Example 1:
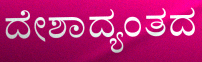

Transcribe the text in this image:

ದೇಶಾದ್ಯಂತದ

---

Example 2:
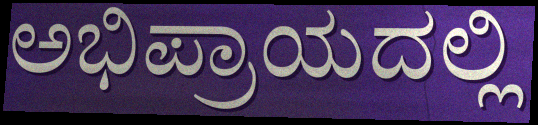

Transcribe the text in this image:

ಅಭಿಪ್ರಾಯದಲ್ಲಿ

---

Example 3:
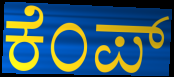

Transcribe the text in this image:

ಕೆಂಪ್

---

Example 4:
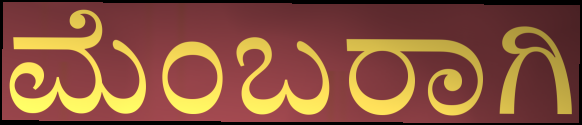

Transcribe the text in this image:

ಮೆಂಬರಾಗಿ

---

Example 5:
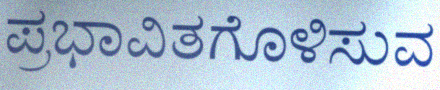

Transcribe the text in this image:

ಪ್ರಭಾವಿತಗೊಳಿಸುವ